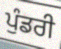
ਪੁੰਡਰੀ